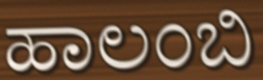
ಹಾಲಂಬಿ